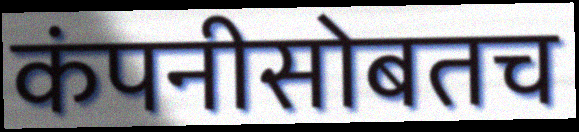
कंपनीसोबतच